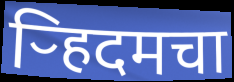
ऱ्हिदमचा